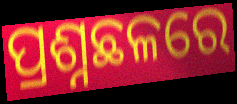
ପ୍ରଶ୍ନଛଳରେ